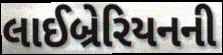
લાઈબ્રેરિયનની